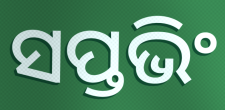
ସପ୍ତଭିଂ